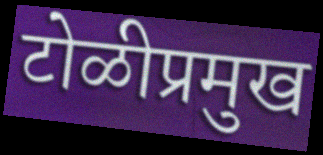
टोळीप्रमुख